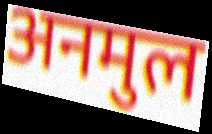
अनमुल